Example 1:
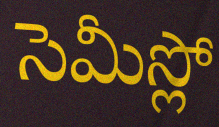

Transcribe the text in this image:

సెమీస్లో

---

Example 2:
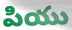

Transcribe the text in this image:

పియు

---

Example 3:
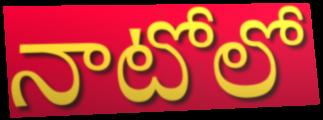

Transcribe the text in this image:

నాటోలో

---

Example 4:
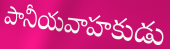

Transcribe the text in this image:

పానీయవాహకుడు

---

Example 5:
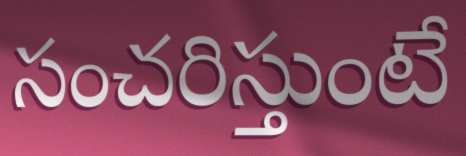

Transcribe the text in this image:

సంచరిస్తుంటే